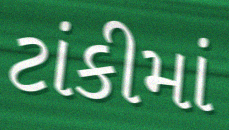
ટાંકીમાં